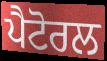
ਪੈਟੋਰਲ